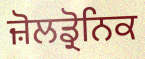
ਜ਼ੋਲਡ੍ਰੋਨਿਕ